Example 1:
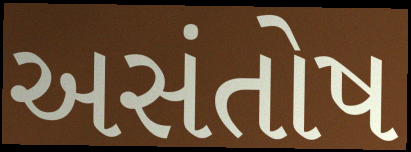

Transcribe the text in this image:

અસંતોષ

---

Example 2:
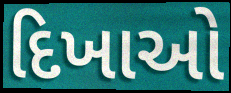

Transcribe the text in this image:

દિખાઓ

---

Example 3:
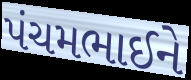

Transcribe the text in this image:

પંચમભાઈને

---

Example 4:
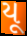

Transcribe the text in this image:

યૂ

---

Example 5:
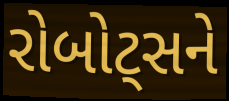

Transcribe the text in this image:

રોબોટ્સને